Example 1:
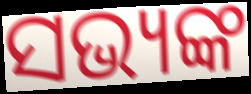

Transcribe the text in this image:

ସଭ୍ୟଙ୍କ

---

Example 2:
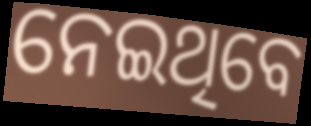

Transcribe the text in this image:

ନେଇଥିବେ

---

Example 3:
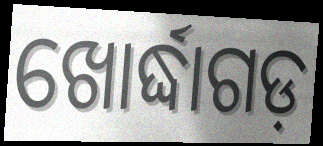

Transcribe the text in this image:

ଖୋର୍ଦ୍ଧାଗଡ଼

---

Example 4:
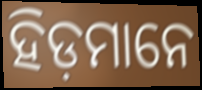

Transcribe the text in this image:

ହିଡ଼ମାନେ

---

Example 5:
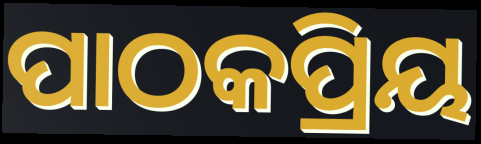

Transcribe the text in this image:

ପାଠକପ୍ରିୟ